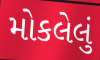
મોકલેલું